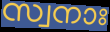
സ്വനാഃ